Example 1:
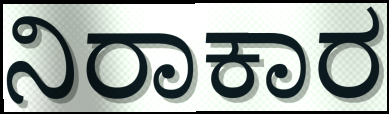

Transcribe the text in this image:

ನಿರಾಕಾರ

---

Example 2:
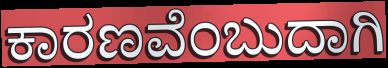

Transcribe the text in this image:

ಕಾರಣವೆಂಬುದಾಗಿ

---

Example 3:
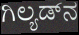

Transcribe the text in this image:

ಗಿಲ್ಯಡ್‌ನ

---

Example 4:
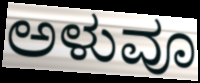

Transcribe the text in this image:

ಅಳುವೂ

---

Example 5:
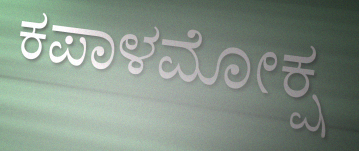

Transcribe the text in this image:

ಕಪಾಳಮೋಕ್ಷ